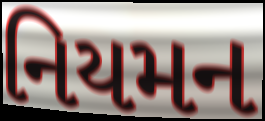
નિયમન